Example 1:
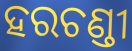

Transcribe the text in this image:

ହରଚଣ୍ଡୀ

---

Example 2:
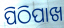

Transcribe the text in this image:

ପିଠିପାଖ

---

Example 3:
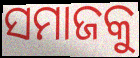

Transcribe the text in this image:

ସମାଜକୁ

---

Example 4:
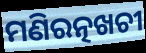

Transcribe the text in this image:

ମଣିରତ୍ନଖଚୀ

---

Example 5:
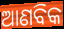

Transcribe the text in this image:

ଆଣବିକ